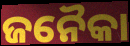
ଜନୈକା